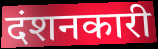
दंशनकारी